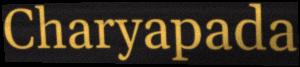
Charyapada